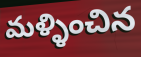
మళ్ళించిన